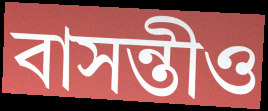
বাসন্তীও